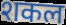
शकल